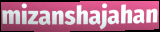
mizanshajahan